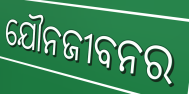
ଯୌନଜୀବନର